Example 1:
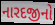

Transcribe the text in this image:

નારદજીનો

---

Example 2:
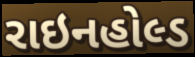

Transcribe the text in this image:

રાઇનહોલ્ડ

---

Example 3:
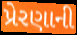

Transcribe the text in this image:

પ્રેરણાની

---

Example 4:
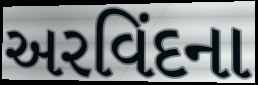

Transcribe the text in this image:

અરવિંદના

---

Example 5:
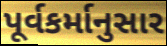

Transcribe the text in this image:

પૂર્વકર્માનુસાર